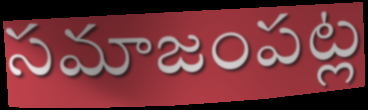
సమాజంపట్ల